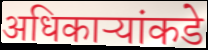
अधिकाऱ्यांकडे